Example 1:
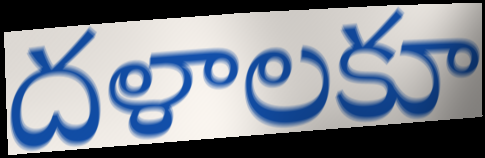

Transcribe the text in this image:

దళాలకూ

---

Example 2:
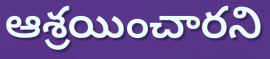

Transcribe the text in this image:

ఆశ్రయించారని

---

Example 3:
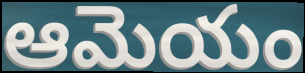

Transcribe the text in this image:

ఆమెయం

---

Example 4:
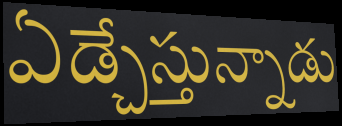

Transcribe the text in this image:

ఏడ్చేస్తున్నాడు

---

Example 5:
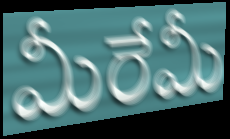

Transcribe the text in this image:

మీరేమీ